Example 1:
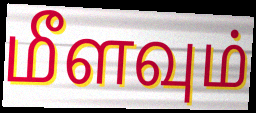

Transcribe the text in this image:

மீளவும்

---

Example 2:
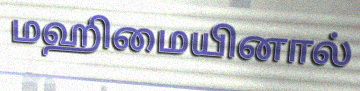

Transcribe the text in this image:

மஹிமையினால்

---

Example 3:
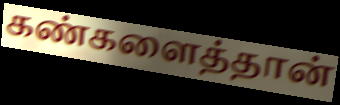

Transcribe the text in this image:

கண்களைத்தான்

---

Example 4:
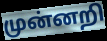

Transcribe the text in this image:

முன்னறி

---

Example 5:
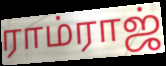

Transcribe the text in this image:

ராம்ராஜ்